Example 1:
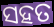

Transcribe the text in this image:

ସହତ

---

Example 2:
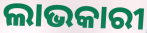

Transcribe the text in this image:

ଲାଭକାରୀ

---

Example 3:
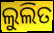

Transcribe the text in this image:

ଲୁଲିତ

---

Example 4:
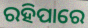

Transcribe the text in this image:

ରହିପାରେ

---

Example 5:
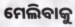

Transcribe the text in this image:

ମେଲିବାକୁ